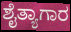
ಶೈತ್ಯಾಗಾರ